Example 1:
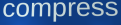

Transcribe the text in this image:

compress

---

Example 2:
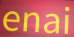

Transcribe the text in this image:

enai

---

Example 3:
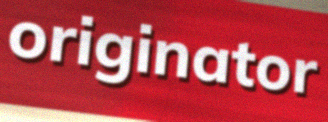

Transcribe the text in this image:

originator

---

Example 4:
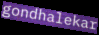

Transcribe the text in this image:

gondhalekar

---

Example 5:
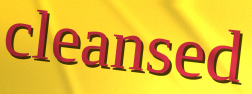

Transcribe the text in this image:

cleansed